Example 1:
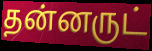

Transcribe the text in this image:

தன்னருட்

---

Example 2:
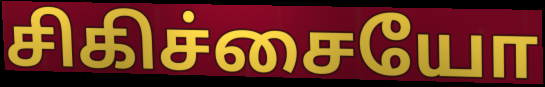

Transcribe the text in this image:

சிகிச்சையோ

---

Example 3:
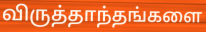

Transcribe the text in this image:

விருத்தாந்தங்களை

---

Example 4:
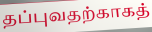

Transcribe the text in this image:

தப்புவதற்காகத்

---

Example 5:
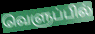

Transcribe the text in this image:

வெளுப்பில்